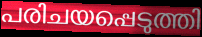
പരിചയപ്പെടുത്തി